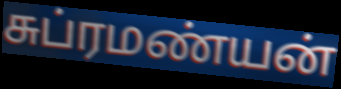
சுப்ரமண்யன்